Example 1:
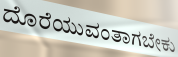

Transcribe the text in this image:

ದೊರೆಯುವಂತಾಗಬೇಕು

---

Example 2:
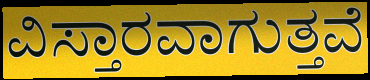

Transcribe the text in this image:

ವಿಸ್ತಾರವಾಗುತ್ತವೆ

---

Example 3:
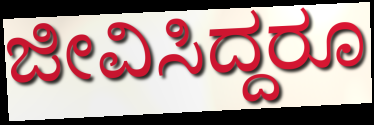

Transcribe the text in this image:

ಜೀವಿಸಿದ್ದರೂ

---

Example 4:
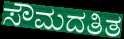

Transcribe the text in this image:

ಸೌಮದತಿತ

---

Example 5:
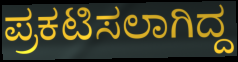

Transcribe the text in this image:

ಪ್ರಕಟಿಸಲಾಗಿದ್ದ